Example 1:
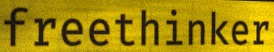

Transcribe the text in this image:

freethinker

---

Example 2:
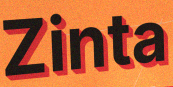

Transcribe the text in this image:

Zinta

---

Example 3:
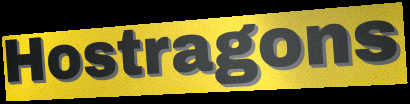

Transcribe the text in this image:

Hostragons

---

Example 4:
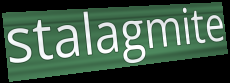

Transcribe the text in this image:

stalagmite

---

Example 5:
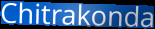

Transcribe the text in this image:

Chitrakonda